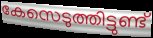
കേസെടുത്തിട്ടുണ്ട്